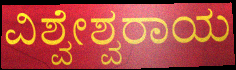
ವಿಶ್ವೇಶ್ವರಾಯ